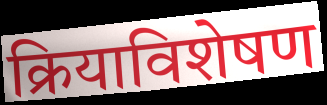
क्रियाविशेषण